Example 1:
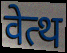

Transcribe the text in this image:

वेत्थ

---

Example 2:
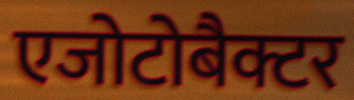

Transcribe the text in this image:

एजोटोबैक्टर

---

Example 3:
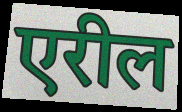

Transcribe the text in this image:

एरील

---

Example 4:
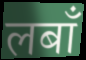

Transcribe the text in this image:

लबाँ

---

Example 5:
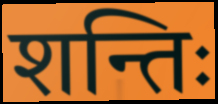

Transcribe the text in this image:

शन्तिः